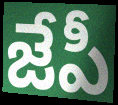
జేపీ